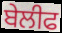
ਬੇਲੀਫ